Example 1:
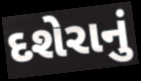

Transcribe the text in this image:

દશેરાનું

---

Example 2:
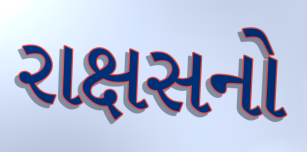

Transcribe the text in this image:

રાક્ષસનો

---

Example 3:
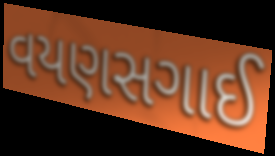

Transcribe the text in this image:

વયણસગાઈ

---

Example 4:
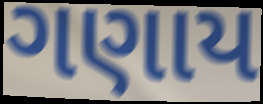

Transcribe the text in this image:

ગણાય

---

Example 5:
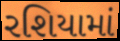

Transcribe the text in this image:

રશિયામાં